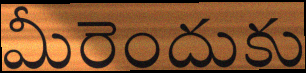
మీరెందుకు